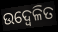
ଉଦ୍ବେଳିତ